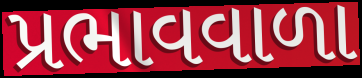
પ્રભાવવાળા